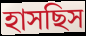
হাসছিস